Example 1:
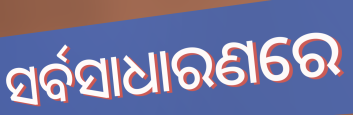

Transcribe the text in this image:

ସର୍ବସାଧାରଣରେ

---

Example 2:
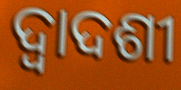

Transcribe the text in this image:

ଦ୍ବାଦଶୀ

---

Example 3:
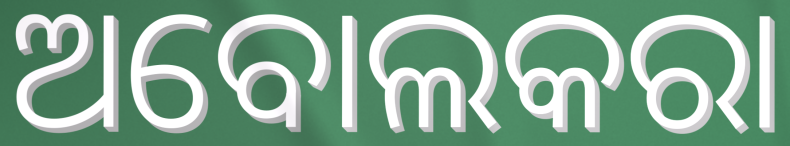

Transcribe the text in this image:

ଅବୋଲକରା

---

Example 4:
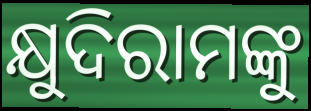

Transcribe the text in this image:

କ୍ଷୁଦିରାମଙ୍କୁ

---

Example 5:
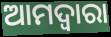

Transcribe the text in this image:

ଆମଦ୍ୱାରା